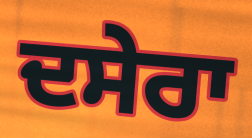
ਦਸੇਰਾ